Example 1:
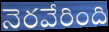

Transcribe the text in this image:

నెరవేరింది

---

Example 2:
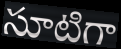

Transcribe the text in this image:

సూటిగా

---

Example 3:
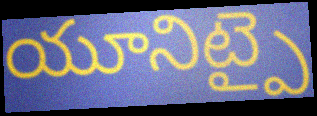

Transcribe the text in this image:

యూనిట్పై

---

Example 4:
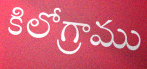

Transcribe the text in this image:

కిలోగ్రాము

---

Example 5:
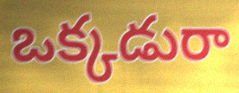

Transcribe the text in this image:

ఒక్కడురా